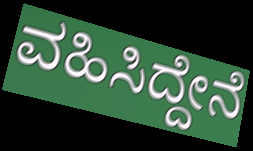
ವಹಿಸಿದ್ದೇನೆ